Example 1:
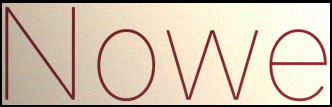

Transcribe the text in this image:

Nowe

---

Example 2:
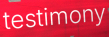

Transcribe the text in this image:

testimony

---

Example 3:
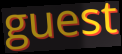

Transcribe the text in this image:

guest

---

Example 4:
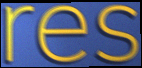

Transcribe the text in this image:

res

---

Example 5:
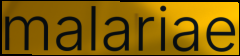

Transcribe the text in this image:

malariae